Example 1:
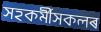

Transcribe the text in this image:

সহকৰ্মীসকলৰ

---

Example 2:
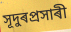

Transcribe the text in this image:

সূদুৰপ্ৰসাৰী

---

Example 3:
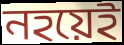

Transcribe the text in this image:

নহয়েই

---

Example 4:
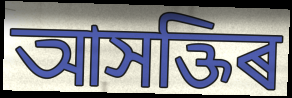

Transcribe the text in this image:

আসক্তিৰ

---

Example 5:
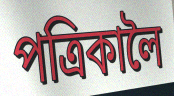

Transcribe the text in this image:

পত্ৰিকালৈ